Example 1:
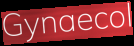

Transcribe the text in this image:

Gynaecol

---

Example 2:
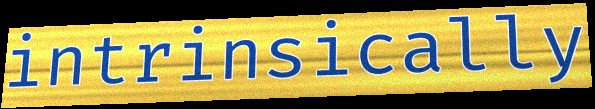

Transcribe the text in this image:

intrinsically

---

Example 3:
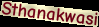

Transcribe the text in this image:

Sthanakwasi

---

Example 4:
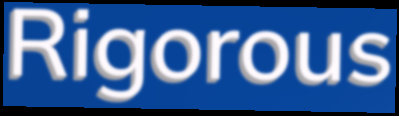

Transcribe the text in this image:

Rigorous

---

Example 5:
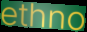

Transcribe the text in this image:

ethno